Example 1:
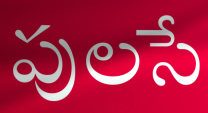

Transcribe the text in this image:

పులసే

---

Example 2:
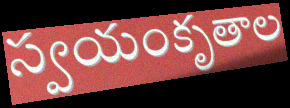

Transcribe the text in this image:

స్వయంకృతాల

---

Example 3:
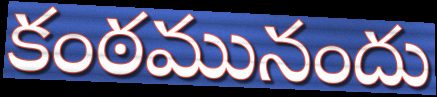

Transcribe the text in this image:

కంఠమునందు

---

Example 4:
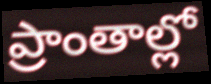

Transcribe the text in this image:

ప్రాంతాల్లో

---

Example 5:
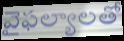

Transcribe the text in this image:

వైఫల్యాలతో